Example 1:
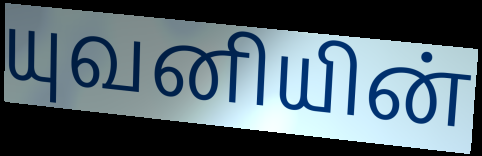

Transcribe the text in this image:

யுவனியின்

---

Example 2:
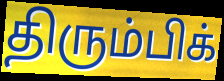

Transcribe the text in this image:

திரும்பிக்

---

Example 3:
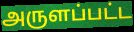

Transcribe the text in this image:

அருளப்பட்ட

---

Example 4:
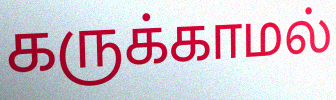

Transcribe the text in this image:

கருக்காமல்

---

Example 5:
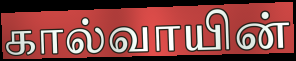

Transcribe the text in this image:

கால்வாயின்